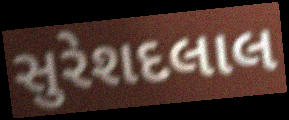
સુરેશદલાલ